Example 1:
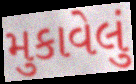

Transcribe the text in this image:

મુકાવેલું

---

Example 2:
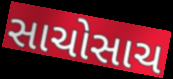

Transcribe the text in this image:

સાચોસાચ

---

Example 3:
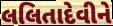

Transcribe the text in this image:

લલિતાદેવીને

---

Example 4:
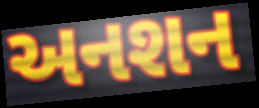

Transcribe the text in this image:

અનશન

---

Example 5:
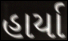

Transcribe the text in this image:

હાર્યા